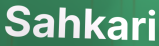
Sahkari